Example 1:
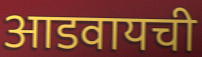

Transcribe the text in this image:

आडवायची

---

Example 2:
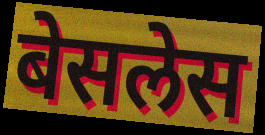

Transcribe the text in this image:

बेसलेस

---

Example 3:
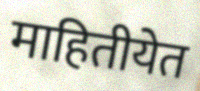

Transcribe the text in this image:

माहितीयेत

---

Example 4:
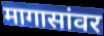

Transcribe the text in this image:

मागासांवर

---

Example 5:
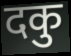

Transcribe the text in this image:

दकु